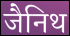
जैनिथ